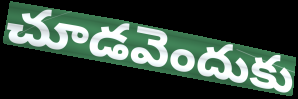
చూడవెందుకు